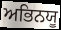
ਅਭਿਨਯੂ